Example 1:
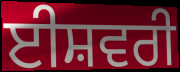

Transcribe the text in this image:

ਈਸ਼ਵਰੀ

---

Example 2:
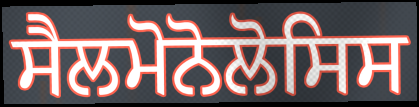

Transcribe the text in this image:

ਸੈਲਮੋਨੋਲੋਸਿਸ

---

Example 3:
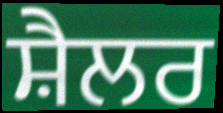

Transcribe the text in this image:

ਸ਼ੈਲਰ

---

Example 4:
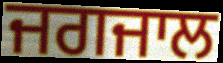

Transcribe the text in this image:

ਜਗਜਾਲ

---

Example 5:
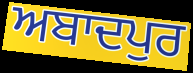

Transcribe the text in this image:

ਅਬਾਦਪੁਰ